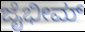
ಜೈಭೀಮ್